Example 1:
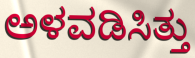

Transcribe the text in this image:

ಅಳವಡಿಸಿತ್ತು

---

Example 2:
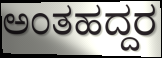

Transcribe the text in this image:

ಅಂತಹದ್ದರ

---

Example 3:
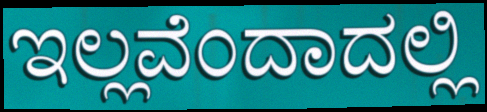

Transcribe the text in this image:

ಇಲ್ಲವೆಂದಾದಲ್ಲಿ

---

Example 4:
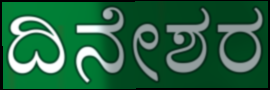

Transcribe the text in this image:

ದಿನೇಶರ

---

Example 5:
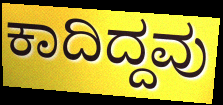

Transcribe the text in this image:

ಕಾದಿದ್ದವು